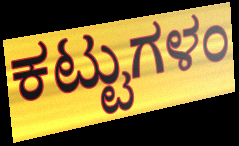
ಕಟ್ಟುಗಳಂ